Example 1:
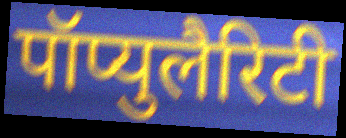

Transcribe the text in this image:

पॉप्युलैरिटी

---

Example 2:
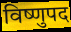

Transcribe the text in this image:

विष्‍णुपद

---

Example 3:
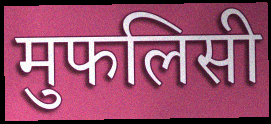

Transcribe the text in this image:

मुफलिसी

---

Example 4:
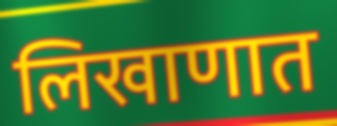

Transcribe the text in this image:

लिखाणात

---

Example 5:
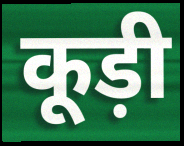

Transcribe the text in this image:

कूड़ी